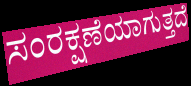
ಸಂರಕ್ಷಣೆಯಾಗುತ್ತದೆ